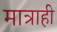
मात्राही